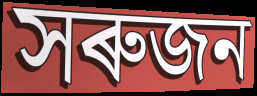
সৰুজন